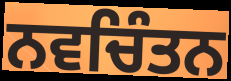
ਨਵਚਿੰਤਨ